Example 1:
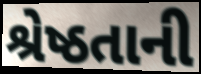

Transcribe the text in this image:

શ્રેષ્ઠતાની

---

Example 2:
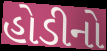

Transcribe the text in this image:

હોડીનો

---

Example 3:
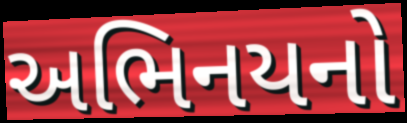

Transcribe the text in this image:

અભિનયનો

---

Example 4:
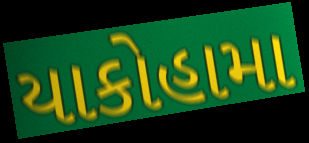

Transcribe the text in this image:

યાકોહામા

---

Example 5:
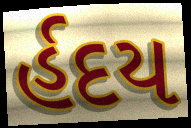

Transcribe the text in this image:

ર્હદય